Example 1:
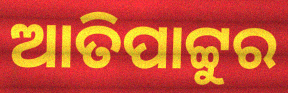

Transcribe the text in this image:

ଆତିପାଟ୍ଟୁର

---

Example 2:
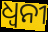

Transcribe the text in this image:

ଧ୍ୱନୀ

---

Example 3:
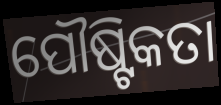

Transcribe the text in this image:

ପୌଷ୍ଟିକତା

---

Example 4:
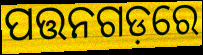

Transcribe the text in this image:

ପତ୍ତନଗଡ଼ରେ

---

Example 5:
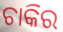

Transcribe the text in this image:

ଚାକିର